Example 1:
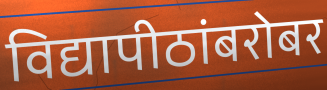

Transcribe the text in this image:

विद्यापीठांबरोबर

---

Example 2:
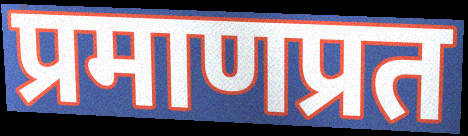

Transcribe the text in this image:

प्रमाणप्रत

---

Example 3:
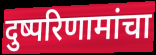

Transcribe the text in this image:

दुष्परिणामांचा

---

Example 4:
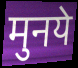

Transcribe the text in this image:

मुनये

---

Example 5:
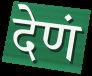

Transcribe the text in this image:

देणं